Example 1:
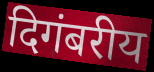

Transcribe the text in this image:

दिगंबरीय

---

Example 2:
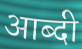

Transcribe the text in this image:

आब्दी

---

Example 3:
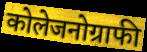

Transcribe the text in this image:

कोलेजनोग्राफी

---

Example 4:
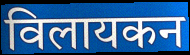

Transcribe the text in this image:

विलायकन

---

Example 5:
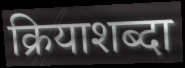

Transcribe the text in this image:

क्रियाशब्दा